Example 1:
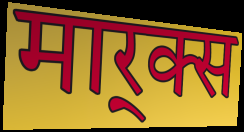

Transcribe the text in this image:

मार्क्स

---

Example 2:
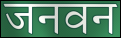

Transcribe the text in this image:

जनवन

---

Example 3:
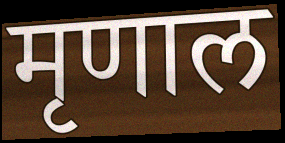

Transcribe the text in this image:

मृणाल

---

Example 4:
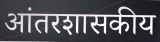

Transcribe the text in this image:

आंतरशासकीय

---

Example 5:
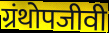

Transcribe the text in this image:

ग्रंथोपजीवी